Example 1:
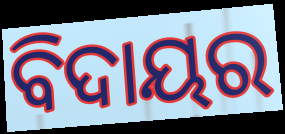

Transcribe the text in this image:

ବିଦାୟର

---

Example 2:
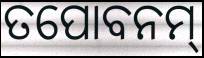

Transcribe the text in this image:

ତପୋବନମ୍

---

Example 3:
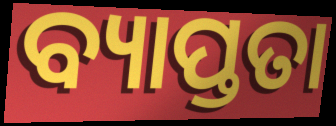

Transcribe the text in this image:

ବ୍ୟାପ୍ତତା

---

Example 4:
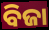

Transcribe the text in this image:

ବିଜା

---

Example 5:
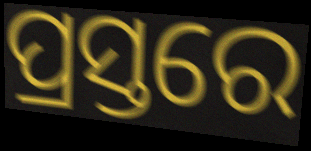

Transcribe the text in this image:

ପ୍ରସ୍ତରେ